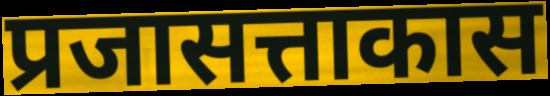
प्रजासत्ताकास